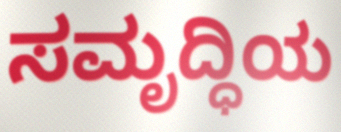
ಸಮೃದ್ಧಿಯ